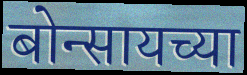
बोन्सायच्या